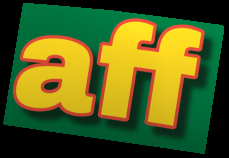
aff